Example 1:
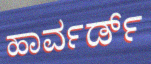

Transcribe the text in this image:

ಹಾರ್ವರ್ಡ್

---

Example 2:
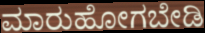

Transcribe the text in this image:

ಮಾರುಹೋಗಬೇಡಿ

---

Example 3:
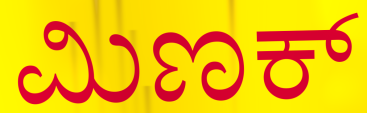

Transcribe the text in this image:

ಮಿಣಕ್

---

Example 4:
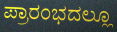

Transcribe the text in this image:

ಪ್ರಾರಂಭದಲ್ಲೂ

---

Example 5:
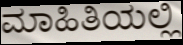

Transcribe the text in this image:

ಮಾಹಿತಿಯಲ್ಲಿ